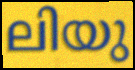
ലിയു